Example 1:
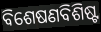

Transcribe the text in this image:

ବିଶେଷଣବିଶିଷ୍ଟ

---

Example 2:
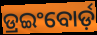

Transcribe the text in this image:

ଡ୍ରଇଂବୋର୍ଡ଼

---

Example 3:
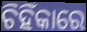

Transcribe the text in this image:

ଚିହିଁକାରେ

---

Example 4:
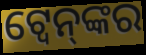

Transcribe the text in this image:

ଟ୍ୱେନ୍‌ଙ୍କର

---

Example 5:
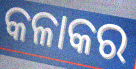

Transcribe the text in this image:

କଳାକର